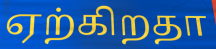
ஏற்கிறதா